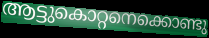
ആട്ടുകൊറ്റനെക്കൊണ്ടു